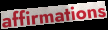
affirmations